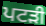
ਪਟੜੀ